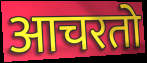
आचरतो